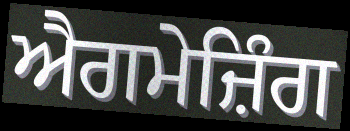
ਐਗਮੇਜ਼ਿੰਗ